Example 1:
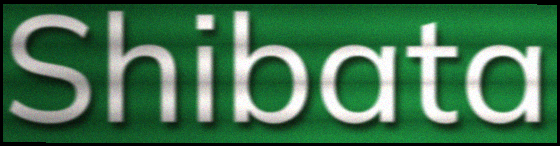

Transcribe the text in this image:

Shibata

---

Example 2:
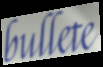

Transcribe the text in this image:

bullete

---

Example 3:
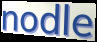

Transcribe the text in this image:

nodle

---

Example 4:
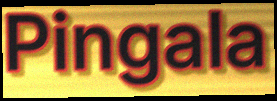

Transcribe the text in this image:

Pingala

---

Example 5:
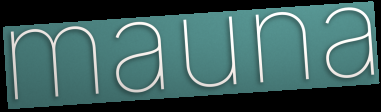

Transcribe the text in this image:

mauna